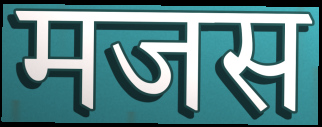
मजस